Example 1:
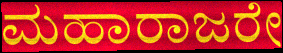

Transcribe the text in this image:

ಮಹಾರಾಜರೇ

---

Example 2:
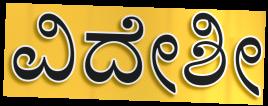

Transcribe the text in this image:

ವಿದೇಶೀ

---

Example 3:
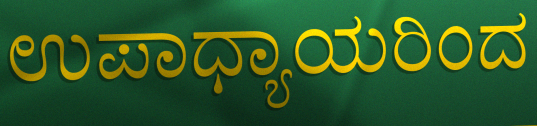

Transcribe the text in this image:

ಉಪಾಧ್ಯಾಯರಿಂದ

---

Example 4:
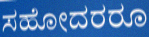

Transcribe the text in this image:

ಸಹೋದರರೂ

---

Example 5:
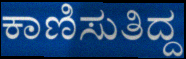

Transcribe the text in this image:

ಕಾಣಿಸುತಿದ್ದ